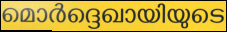
മൊർദ്ദെഖായിയുടെ